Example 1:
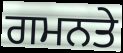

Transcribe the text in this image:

ਗਮਨਤੇ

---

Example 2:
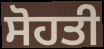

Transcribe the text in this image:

ਸੋਹਤੀ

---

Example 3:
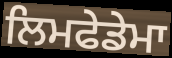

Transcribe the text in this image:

ਲਿਮਫੇਡੇਮਾ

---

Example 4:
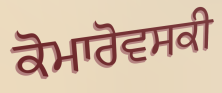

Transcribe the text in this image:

ਕੋਮਾਰੋਵਸਕੀ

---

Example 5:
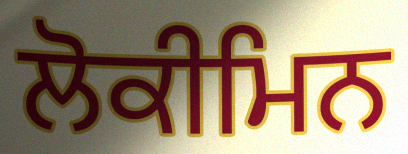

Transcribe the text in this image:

ਲੋਕੀਮਿਨ